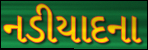
નડીયાદના